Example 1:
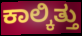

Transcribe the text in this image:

ಕಾಲ್ಕಿತ್ತು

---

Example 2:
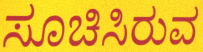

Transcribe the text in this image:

ಸೂಚಿಸಿರುವ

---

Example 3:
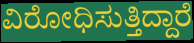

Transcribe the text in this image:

ವಿರೋಧಿಸುತ್ತಿದ್ದಾರೆ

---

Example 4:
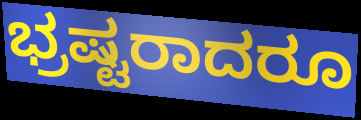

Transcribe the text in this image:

ಭ್ರಷ್ಟರಾದರೂ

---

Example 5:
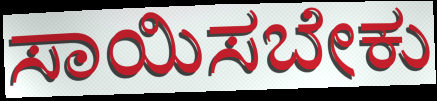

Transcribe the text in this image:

ಸಾಯಿಸಬೇಕು